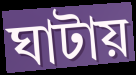
ঘাটায়